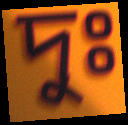
দুঃ